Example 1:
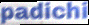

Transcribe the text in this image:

padichi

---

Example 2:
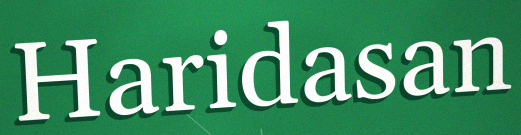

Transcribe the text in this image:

Haridasan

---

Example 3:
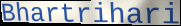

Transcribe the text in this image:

Bhartrihari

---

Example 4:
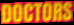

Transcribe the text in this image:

DOCTORS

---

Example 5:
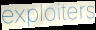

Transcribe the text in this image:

exploiters